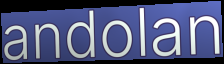
andolan